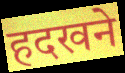
हदखने